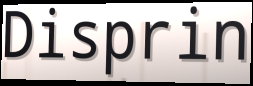
Disprin